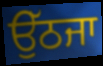
ਉੱਠਜਾ